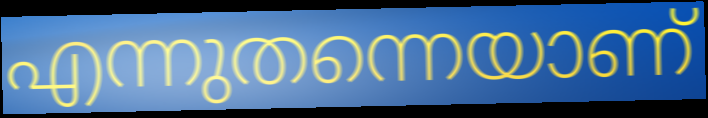
എന്നുതന്നെയാണ്